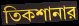
তিকশানার